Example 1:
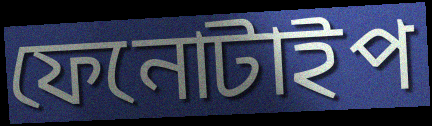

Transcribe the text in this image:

ফেনোটাইপ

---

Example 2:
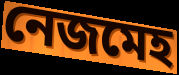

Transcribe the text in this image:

নেজমেহ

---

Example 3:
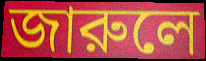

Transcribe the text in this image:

জারুলে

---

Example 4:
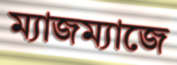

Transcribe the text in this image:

ম্যাজম্যাজে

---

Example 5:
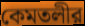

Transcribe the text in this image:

কেমতলীর